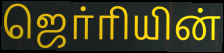
ஜெர்ரியின்